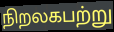
நிறலகபற்று